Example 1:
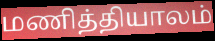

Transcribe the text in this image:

மணித்தியாலம்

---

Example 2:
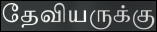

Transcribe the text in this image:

தேவியருக்கு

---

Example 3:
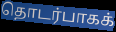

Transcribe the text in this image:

தொடர்பாகக்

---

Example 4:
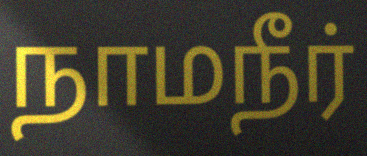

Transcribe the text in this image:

நாமநீர்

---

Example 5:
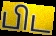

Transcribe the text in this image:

பிட